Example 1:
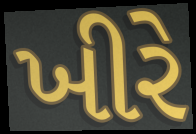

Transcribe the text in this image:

ખીરે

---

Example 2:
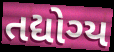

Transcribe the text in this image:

તદ્યોગ્ય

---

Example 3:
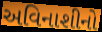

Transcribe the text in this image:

અવિનાશીનો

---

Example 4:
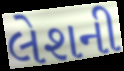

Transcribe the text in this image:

લેશની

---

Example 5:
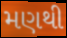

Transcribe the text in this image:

મણથી